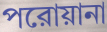
পরোয়ানা